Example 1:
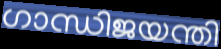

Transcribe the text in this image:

ഗാന്ധിജയന്തി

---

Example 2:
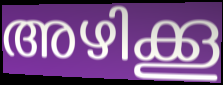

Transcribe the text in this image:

അഴിക്കൂ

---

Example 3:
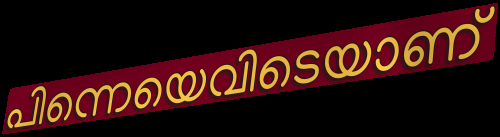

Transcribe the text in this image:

പിന്നെയെവിടെയാണ്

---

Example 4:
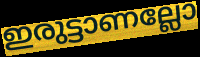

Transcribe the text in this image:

ഇരുട്ടാണല്ലോ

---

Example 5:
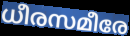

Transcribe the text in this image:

ധീരസമീരേ